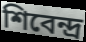
শিবেন্দ্র